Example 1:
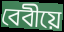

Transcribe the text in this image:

বেবীয়ে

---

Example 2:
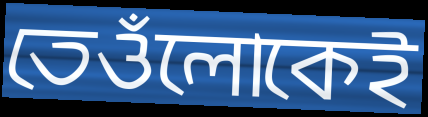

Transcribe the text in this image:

তেওঁলোকেই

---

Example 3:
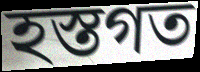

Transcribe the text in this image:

হস্তগত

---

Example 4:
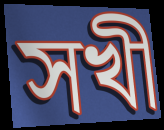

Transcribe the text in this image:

সখী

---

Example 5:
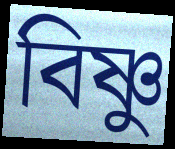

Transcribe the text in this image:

বিষ্ণু